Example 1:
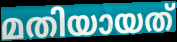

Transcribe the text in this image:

മതിയായത്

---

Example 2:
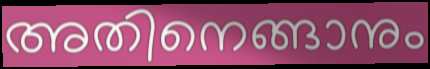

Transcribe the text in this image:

അതിനെങ്ങാനും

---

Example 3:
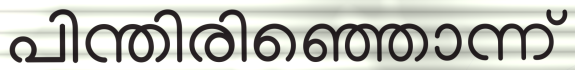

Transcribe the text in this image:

പിന്തിരിഞ്ഞൊന്ന്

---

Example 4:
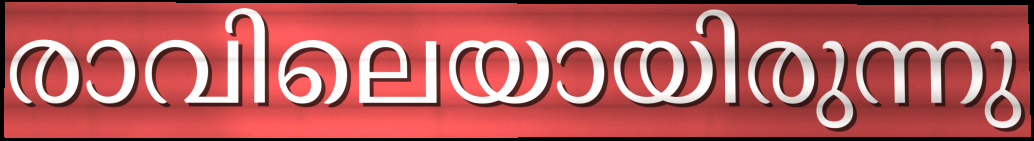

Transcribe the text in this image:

രാവിലെയായിരുന്നു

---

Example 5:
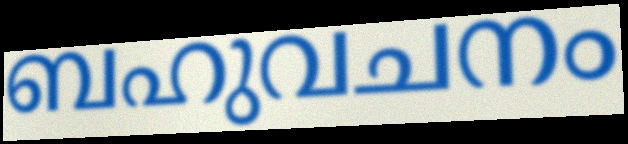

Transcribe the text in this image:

ബഹുവചനം